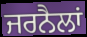
ਜਰਨੈਲਾਂ